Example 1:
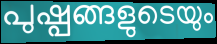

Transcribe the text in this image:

പുഷ്പങ്ങളുടെയും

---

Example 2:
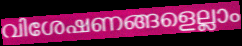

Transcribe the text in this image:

വിശേഷണങ്ങളെല്ലാം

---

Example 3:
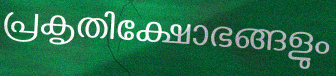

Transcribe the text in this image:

പ്രകൃതിക്ഷോഭങ്ങളും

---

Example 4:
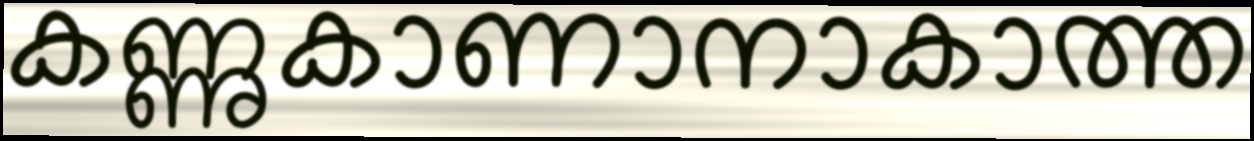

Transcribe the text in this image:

കണ്ണുകാണാനാകാത്ത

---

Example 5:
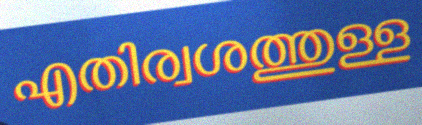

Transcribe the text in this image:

എതിര്വശത്തുള്ള